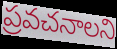
ప్రవచనాలని